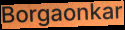
Borgaonkar